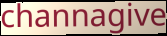
channagive